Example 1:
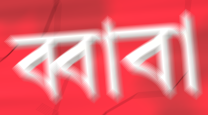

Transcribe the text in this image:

ব্বাবা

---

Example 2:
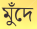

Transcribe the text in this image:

মুঁদে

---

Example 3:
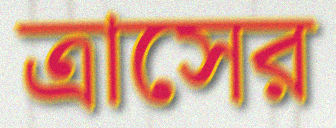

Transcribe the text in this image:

ত্রাসের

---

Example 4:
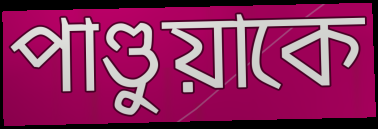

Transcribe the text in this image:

পাণ্ডুয়াকে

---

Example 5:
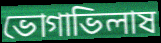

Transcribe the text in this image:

ভোগাভিলাষ